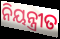
ନିୟନ୍ତ୍ରୀତ